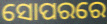
ସୋପରରେ